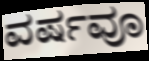
ವರ್ಷವೂ